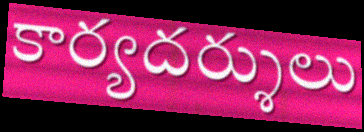
కార్యదర్శులు